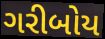
ગરીબોય